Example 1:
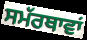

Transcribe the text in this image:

ਸਮੱਰਥਾਵਾਂ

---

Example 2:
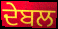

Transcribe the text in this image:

ਦੇਬਲ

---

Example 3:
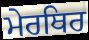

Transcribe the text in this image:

ਮੇਰਥਿਰ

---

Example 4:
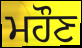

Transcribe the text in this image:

ਮਹੌਣ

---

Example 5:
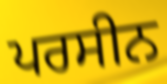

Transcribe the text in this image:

ਪਰਸੀਨ